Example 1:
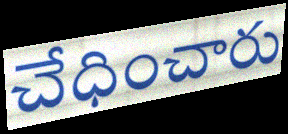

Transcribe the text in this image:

చేధించారు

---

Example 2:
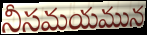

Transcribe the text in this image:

నీసమయమున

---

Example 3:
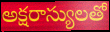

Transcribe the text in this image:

అక్షరాస్యులతో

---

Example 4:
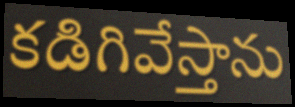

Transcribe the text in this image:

కడిగివేస్తాను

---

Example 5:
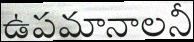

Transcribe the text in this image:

ఉపమానాలనీ